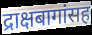
द्राक्षबागांसह